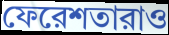
ফেরেশতারাও